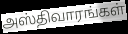
அஸ்திவாரங்கள்